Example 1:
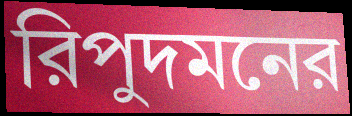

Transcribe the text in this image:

রিপুদমনের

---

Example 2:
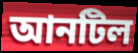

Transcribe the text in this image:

আনটিল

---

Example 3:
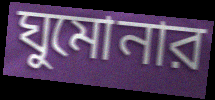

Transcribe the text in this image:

ঘুমোনার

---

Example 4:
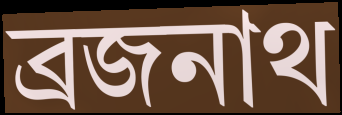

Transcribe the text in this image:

ব্রজনাথ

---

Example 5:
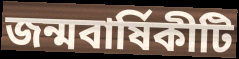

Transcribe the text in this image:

জন্মবার্ষিকীটি